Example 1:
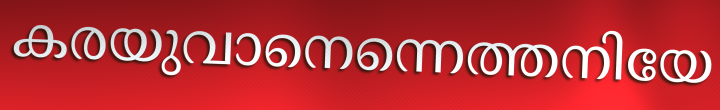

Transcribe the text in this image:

കരയുവാനെന്നെത്തനിയേ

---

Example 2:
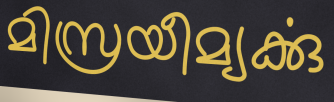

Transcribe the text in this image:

മിസ്രയീമ്യൎക്കു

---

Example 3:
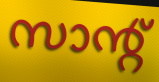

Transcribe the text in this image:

സാന്റ്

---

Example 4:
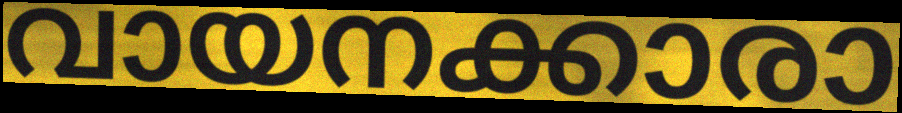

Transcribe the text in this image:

വായനക്കാരാ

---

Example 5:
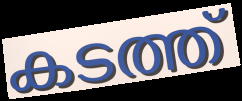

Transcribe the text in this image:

കടത്ത്